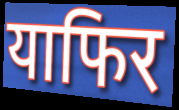
याफिर